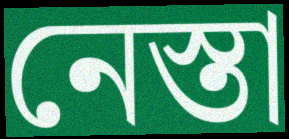
নেস্তা